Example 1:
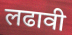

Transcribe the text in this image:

लढावी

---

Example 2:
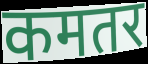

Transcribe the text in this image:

कमतर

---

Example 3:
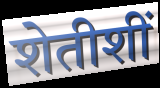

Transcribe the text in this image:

शेतीशीं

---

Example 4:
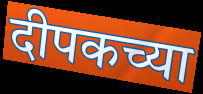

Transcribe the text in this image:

दीपकच्या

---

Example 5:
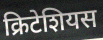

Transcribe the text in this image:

क्रिटेशियस